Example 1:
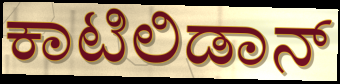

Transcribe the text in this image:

ಕಾಟಿಲಿಡಾನ್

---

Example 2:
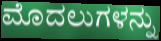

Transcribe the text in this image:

ಮೊದಲುಗಳನ್ನು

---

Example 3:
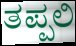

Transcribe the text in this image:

ತಪ್ಪಲಿ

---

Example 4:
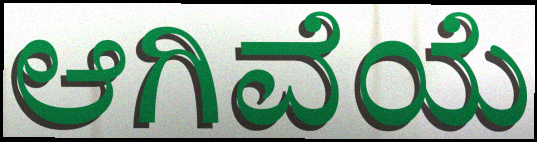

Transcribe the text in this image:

ಆಗಿವೆಯೆ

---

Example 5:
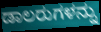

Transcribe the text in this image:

ಡಾಲರುಗಳನ್ನು